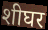
शीघर